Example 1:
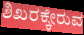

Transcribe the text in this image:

ಶಿಖರಕ್ಕೇರುವ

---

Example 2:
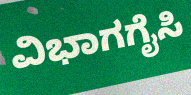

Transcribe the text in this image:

ವಿಭಾಗಗೈಸಿ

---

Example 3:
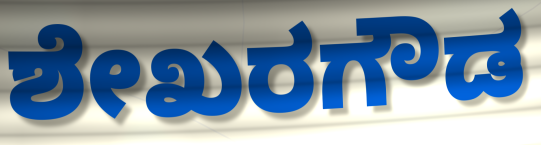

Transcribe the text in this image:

ಶೇಖರಗೌಡ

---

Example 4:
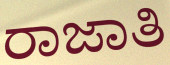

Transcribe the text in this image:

ರಾಜಾತಿ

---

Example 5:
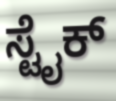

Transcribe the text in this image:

ಸ್ಟೈಕ್